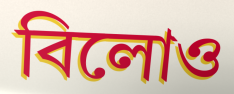
বিলোও